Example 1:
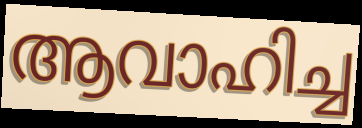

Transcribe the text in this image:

ആവാഹിച്ച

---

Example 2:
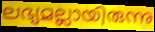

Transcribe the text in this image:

ലഭ്യമല്ലായിരുന്നു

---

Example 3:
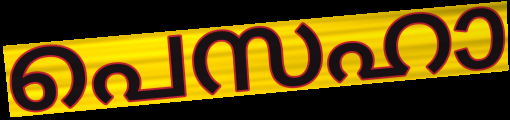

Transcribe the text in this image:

പെസഹാ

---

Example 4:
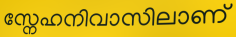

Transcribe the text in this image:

സ്നേഹനിവാസിലാണ്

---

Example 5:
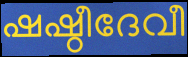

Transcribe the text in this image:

ഷഷ്ഠീദേവീ